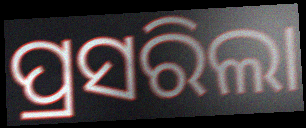
ପ୍ରସରିଲା